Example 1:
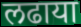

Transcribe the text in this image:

लढाया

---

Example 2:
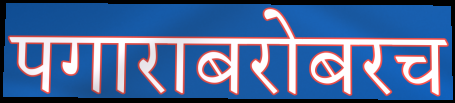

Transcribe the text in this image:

पगाराबरोबरच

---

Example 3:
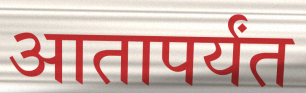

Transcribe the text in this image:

आतापर्यंत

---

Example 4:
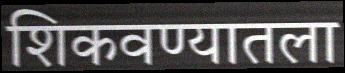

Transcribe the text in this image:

शिकवण्यातला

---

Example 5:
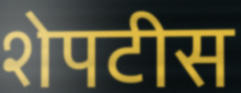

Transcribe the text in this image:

शेपटीस